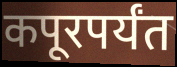
कपूरपर्यंत